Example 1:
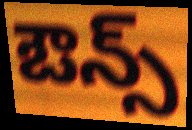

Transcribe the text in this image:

ఔన్స్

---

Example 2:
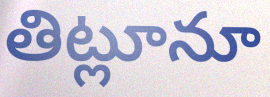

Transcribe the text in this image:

తిట్లూనూ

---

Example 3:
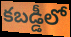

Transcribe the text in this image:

కబడ్డీలో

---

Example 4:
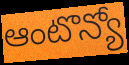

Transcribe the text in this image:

ఆంటొన్యో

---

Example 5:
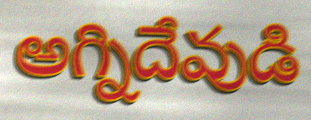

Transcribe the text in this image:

అగ్నిదేవుడి